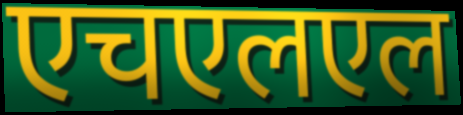
एचएलएल